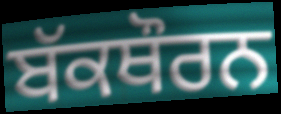
ਬੱਕਥੌਰਨ